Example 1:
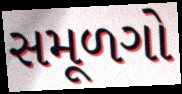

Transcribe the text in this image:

સમૂળગો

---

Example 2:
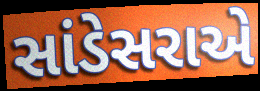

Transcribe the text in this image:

સાંડેસરાએ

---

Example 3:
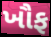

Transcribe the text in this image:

ખૌફ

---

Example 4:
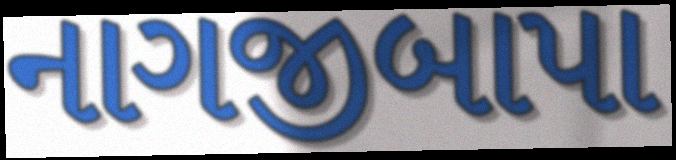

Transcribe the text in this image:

નાગજીબાપા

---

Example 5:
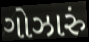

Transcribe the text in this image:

ગોઝારું